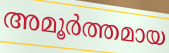
അമൂർത്തമായ